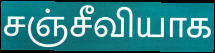
சஞ்சீவியாக